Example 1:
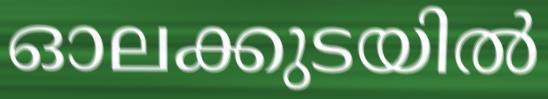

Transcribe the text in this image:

ഓലക്കുടയിൽ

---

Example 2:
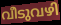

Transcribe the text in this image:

വീടുവഴി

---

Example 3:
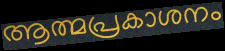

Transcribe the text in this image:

ആത്മപ്രകാശനം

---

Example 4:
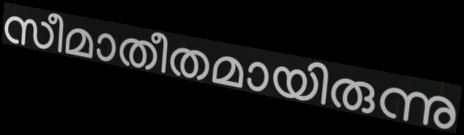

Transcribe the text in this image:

സീമാതീതമായിരുന്നു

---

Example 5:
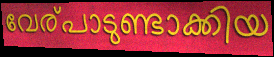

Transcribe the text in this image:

വേര്പാടുണ്ടാക്കിയ